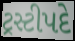
ટ્રસ્ટીપદે